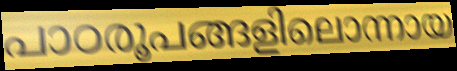
പാഠരൂപങ്ങളിലൊന്നായ